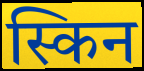
स्किन